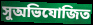
সুঅভিযোজিত